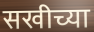
सखीच्या